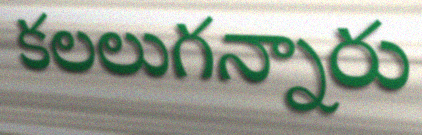
కలలుగన్నారు